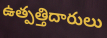
ఉత్పత్తిదారులు